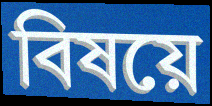
বিষয়ে